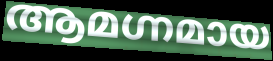
ആമഗ്നമായ